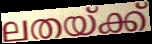
ലതയ്ക്ക്